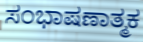
ಸಂಭಾಷಣಾತ್ಮಕ